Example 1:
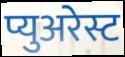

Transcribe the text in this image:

प्युअरेस्ट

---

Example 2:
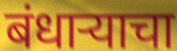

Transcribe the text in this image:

बंधार्‍याचा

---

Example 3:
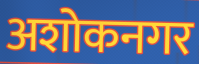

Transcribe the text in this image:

अशोकनगर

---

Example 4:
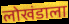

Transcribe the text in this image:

लोखंडाला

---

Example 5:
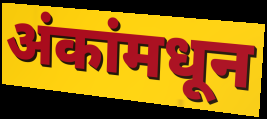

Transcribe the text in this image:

अंकांमधून